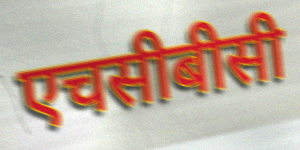
एचसीबीसी